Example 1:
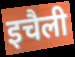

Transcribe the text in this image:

इचैली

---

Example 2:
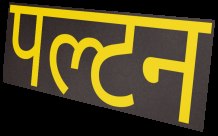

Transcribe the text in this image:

पल्टन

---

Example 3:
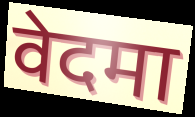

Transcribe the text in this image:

वेदमा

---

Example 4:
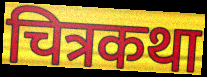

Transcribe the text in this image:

चित्रकथा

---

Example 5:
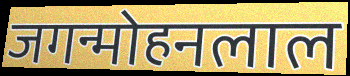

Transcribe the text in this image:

जगन्मोहनलाल